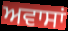
ਅਵਾਸਾਂ